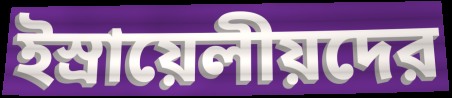
ইস্রায়েলীয়দের